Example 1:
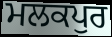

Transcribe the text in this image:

ਮਲਕਪੁਰ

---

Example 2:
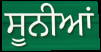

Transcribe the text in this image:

ਸੂਨੀਆਂ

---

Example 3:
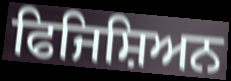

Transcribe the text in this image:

ਫਿਜਿਸ਼ਿਅਨ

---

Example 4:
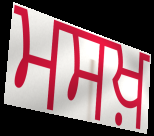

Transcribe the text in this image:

ਮਸਖ਼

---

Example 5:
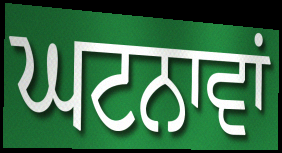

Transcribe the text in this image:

ਘਟਨਾਵਾਂ